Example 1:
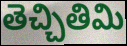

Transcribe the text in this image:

తెచ్చితిమి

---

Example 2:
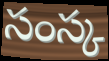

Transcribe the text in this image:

సంస్క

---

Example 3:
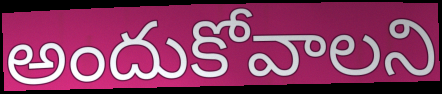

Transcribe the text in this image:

అందుకోవాలని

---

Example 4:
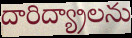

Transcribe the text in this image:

దారిద్య్రాలను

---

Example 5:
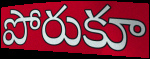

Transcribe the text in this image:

పోరుకూ